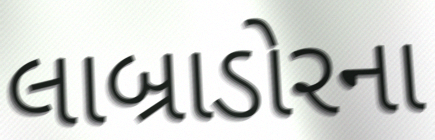
લાબ્રાડોરના